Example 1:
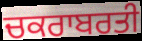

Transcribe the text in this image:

ਚਕਰਾਬਰਤੀ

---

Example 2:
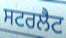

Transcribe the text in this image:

ਸਟਰਲੈਟ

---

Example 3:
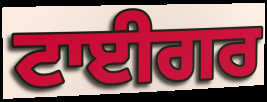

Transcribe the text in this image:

ਟਾਈਗਰ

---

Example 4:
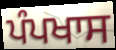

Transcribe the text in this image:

ਪੰਪਖਾਸ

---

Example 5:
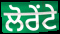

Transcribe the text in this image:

ਲੋਰੇਂਟੇ